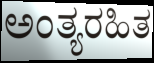
ಅಂತ್ಯರಹಿತ